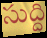
సుద్ది